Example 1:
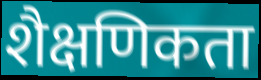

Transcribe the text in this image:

शैक्षणिकता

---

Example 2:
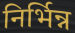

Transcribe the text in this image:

निर्भिन्न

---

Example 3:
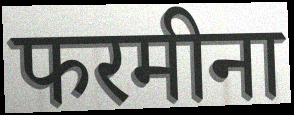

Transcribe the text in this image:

फरमीना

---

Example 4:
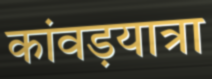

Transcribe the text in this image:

कांवड़यात्रा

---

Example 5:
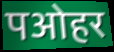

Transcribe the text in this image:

पओहर